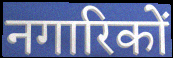
नगारिकों